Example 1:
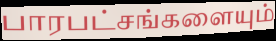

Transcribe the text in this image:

பாரபட்சங்களையும்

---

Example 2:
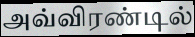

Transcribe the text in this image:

அவ்விரண்டில்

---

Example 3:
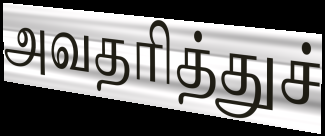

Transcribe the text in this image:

அவதரித்துச்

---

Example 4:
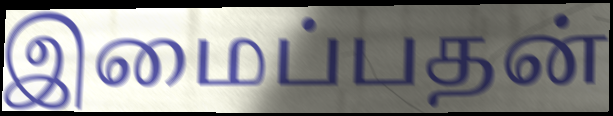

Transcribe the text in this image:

இமைப்பதன்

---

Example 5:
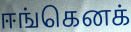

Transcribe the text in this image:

ஈங்கெனக்